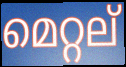
മെറ്റല്